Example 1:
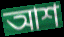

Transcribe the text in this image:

আশ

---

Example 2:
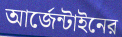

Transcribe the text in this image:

আর্জেন্টাইনের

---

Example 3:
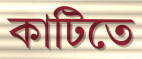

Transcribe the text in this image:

কাটিতে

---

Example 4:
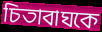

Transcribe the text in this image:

চিতাবাঘকে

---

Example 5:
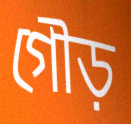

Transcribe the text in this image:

গৌড়